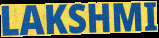
LAKSHMI